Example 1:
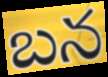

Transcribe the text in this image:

బన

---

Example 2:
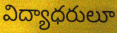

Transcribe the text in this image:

విద్యాధరులూ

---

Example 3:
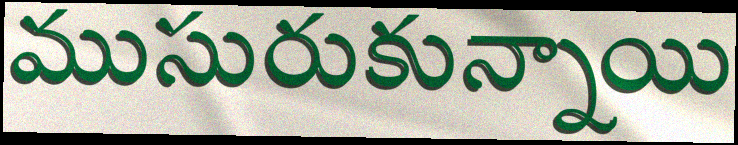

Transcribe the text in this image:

ముసురుకున్నాయి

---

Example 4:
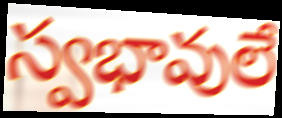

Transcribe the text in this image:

స్వభావులే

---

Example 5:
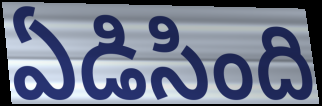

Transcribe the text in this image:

ఏడిసింది